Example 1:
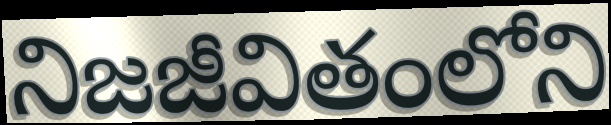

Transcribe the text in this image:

నిజజీవితంలోని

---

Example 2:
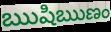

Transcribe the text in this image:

ఋషిఋణం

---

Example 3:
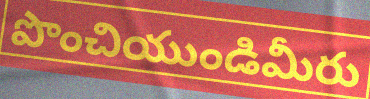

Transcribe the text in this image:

పొంచియుండిమీరు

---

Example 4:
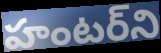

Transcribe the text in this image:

హంటర్‌ని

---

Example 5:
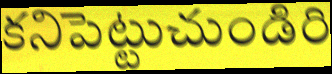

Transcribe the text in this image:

కనిపెట్టుచుండిరి